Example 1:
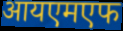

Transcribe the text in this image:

आयएमएफ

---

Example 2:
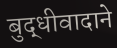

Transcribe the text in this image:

बुद्धीवादाने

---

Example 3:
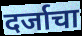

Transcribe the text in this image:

दर्जाचा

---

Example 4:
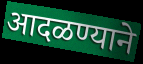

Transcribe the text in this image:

आदळण्याने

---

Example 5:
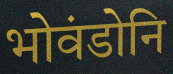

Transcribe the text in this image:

भोवंडोनि